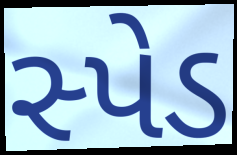
સ્પેડ